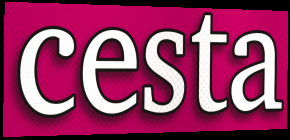
cesta